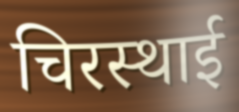
चिरस्थाई